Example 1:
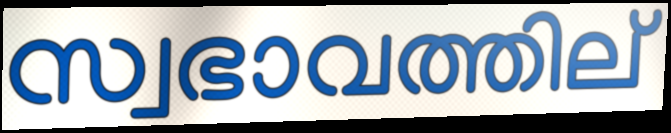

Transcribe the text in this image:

സ്വഭാവത്തില്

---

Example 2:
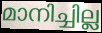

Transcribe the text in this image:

മാനിച്ചില്ല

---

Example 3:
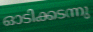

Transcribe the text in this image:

ഓടിക്കടന്നു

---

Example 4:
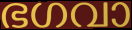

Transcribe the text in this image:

ഭഗവാ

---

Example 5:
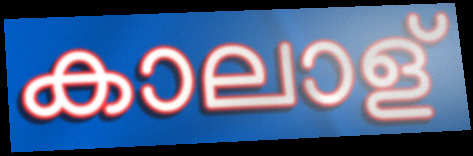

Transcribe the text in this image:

കാലാള്